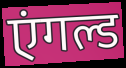
एंगल्ड